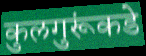
कुलगुरूंकडे